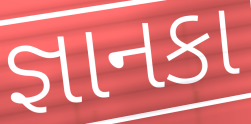
જ્ઞાનકા